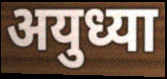
अयुध्या